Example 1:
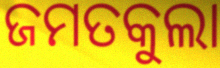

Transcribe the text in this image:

ଜମତକୁଲା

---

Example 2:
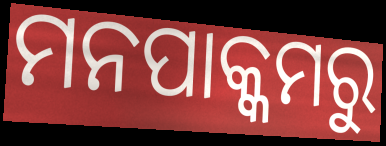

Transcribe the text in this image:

ମନପାକ୍କମରୁ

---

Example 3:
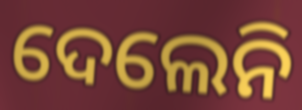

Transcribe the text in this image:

ଦେଲେନି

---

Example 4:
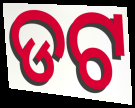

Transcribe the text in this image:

ଡଟ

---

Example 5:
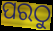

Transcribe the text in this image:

ପରଠୁ